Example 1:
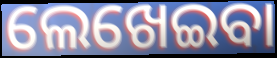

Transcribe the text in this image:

ଲେଖେଇବା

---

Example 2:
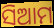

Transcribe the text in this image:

ସିଆମ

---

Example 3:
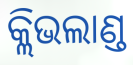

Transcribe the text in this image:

କ୍ଲିଭଲାଣ୍ଡ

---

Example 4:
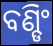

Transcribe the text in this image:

ବଣ୍ଡିଂ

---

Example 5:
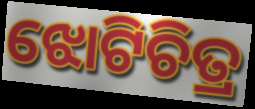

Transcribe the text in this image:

ଝୋଟିଚିତ୍ର